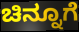
ಚಿನ್ನೂಗೆ